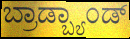
ಬ್ರಾಡ್ಬ್ಯಾಂಡ್